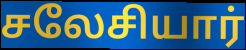
சலேசியார்